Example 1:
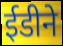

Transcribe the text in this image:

ईडीने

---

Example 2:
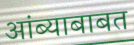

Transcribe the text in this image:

आंब्याबाबत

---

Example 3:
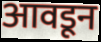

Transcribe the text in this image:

आवडून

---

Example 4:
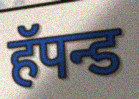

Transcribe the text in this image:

हॅपन्ड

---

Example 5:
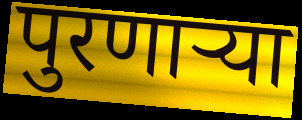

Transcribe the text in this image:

पुरणाऱ्या